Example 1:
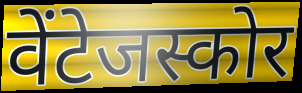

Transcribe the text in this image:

वेंटेजस्कोर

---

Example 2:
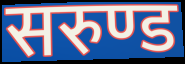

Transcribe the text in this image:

सरुण्ड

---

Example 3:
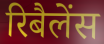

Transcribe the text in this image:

रिबैलेंस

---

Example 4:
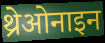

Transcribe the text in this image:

थ्रेओनाइन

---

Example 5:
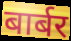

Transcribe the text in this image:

बार्बर